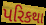
પરિકથા